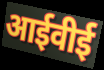
आईवीई